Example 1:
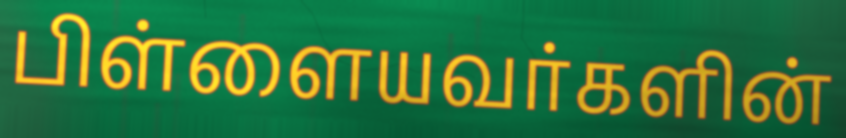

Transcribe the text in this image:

பிள்ளையவர்களின்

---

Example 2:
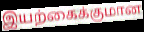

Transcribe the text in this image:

இயற்கைக்குமான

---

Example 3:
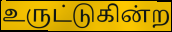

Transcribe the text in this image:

உருட்டுகின்ற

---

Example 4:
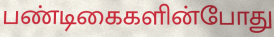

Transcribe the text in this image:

பண்டிகைகளின்போது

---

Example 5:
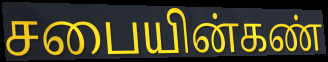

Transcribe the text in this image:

சபையின்கண்